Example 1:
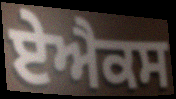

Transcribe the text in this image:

ਏਐਕਸ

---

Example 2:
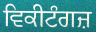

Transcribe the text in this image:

ਵਿਕੀਟੰਗਜ਼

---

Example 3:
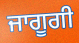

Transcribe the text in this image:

ਜਾਗੂਗੀ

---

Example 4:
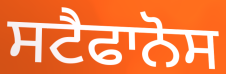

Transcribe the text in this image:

ਸਟੈਫਾਨੋਸ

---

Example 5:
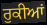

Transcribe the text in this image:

ਰੁਕੀਆਂ